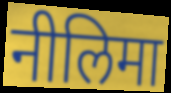
नीलिमा